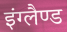
इंग्‍लैण्‍ड